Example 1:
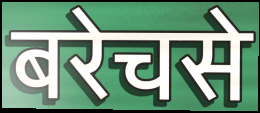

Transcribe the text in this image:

बरेचसे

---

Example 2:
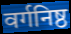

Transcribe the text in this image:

वर्गनिष्ठ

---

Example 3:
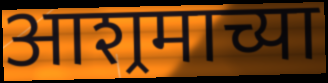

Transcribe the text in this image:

आश्रमाच्या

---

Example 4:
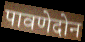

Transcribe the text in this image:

पावणेदोन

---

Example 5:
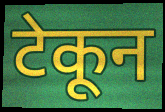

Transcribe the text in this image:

टेकून